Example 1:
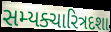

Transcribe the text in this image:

સમ્યક્ચારિત્રદશા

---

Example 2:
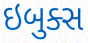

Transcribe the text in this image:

ઇબુક્સ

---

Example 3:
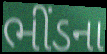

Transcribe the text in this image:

ભીંડના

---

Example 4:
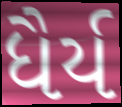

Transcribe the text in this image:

ધૈર્ય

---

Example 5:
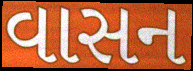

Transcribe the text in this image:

વાસન